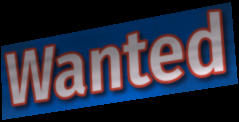
Wanted